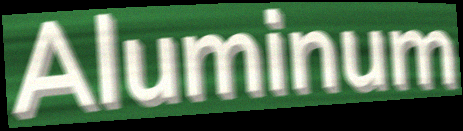
Aluminum